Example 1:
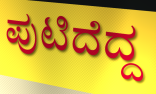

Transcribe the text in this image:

ಪುಟಿದೆದ್ದ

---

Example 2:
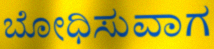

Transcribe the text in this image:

ಬೋಧಿಸುವಾಗ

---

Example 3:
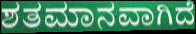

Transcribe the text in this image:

ಶತಮಾನವಾಗಿದೆ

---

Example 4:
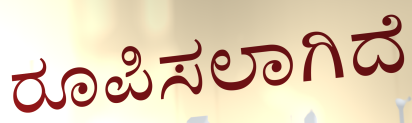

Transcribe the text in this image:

ರೂಪಿಸಲಾಗಿದೆ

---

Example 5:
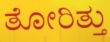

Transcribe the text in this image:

ತೋರಿತ್ತು